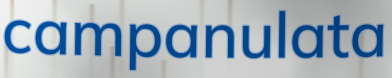
campanulata